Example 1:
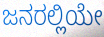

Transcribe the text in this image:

ಜನರಲ್ಲಿಯೇ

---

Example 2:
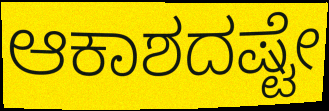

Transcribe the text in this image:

ಆಕಾಶದಷ್ಟೇ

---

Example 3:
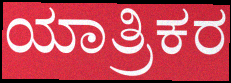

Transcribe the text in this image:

ಯಾತ್ರಿಕರ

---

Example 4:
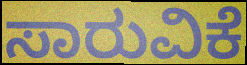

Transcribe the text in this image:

ಸಾರುವಿಕೆ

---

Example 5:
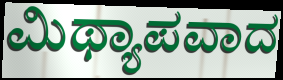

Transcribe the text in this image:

ಮಿಥ್ಯಾಪವಾದ